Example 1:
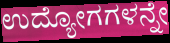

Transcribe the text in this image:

ಉದ್ಯೋಗಗಳನ್ನೇ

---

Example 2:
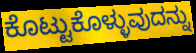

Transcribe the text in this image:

ಕೊಟ್ಟುಕೊಳ್ಳುವುದನ್ನು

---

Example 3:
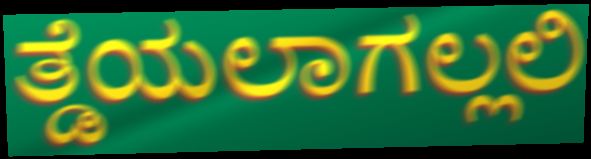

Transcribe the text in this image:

ತ್ಡೆಯಲಾಗಲ್ಲಲಿ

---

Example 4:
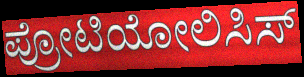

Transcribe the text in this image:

ಪ್ರೋಟಿಯೋಲಿಸಿಸ್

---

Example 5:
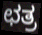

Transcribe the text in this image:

ಛತ್ರ